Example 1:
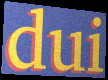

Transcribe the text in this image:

dui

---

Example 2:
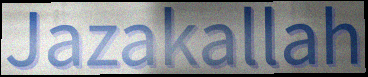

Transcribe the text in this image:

Jazakallah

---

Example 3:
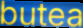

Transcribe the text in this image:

butea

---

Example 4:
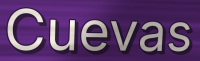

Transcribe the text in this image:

Cuevas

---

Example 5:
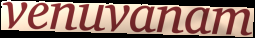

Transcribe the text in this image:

venuvanam